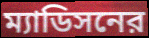
ম্যাডিসনের